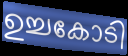
ഉച്ചകോടി